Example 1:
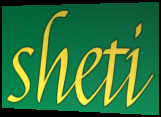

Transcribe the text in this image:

sheti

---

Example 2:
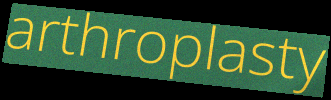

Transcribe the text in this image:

arthroplasty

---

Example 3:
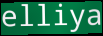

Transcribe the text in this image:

elliya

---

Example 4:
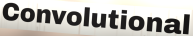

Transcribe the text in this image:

Convolutional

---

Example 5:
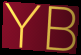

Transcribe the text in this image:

YB